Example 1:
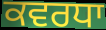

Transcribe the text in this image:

ਕਵਰਧਾ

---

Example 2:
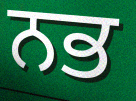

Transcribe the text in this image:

ਨਭ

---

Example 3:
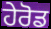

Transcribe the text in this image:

ਹੇਰੋਡ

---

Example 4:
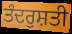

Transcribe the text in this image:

ਤੰਦਰੁਸ਼ਤੀ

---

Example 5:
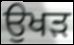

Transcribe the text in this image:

ਉਖੜ